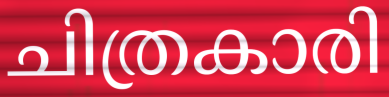
ചിത്രകാരി